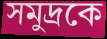
সমুদ্রকে